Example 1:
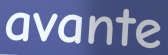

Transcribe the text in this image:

avante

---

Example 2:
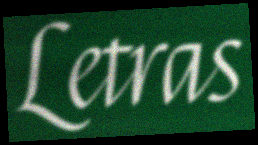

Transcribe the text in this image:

Letras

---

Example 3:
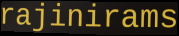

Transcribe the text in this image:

rajinirams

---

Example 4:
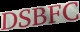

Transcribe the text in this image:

DSBFC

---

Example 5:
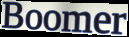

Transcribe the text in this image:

Boomer